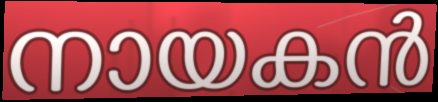
നായകൻ